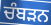
ਚੰਬੜਨ